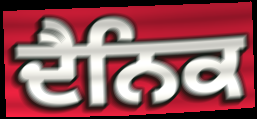
ਦੈਨਿਕ